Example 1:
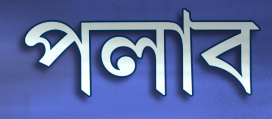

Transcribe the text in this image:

পলাব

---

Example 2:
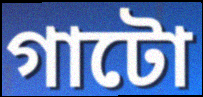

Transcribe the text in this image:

গাটো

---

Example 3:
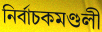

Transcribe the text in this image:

নিৰ্বাচকমণ্ডলী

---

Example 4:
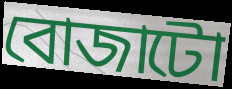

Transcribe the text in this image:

বোজাটো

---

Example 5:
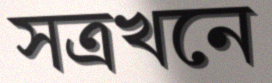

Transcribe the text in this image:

সত্ৰখনে